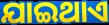
ଯାଇଥାଏ